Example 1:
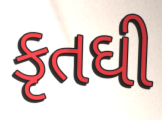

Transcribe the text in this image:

કૃતઘી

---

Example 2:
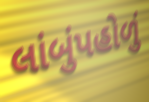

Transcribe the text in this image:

લાંબુંપહોળું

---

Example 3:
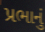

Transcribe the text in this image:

પ્રભાનું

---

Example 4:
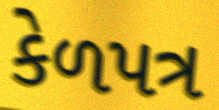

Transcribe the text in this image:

કેળપત્ર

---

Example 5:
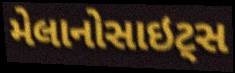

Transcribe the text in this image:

મેલાનોસાઇટ્સ